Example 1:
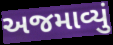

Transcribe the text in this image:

અજમાવ્યું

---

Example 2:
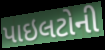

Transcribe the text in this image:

પાઇલટોની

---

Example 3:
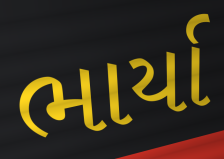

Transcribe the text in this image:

ભાર્યા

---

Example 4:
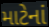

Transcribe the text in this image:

માટેનાં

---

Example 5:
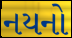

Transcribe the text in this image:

નયનો